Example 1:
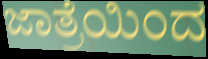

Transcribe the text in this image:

ಜಾತ್ರೆಯಿಂದ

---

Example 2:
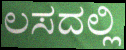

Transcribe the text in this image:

ಲಸದಲ್ಲಿ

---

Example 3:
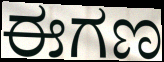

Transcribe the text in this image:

ಈಗಣ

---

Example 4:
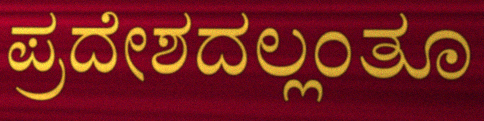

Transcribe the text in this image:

ಪ್ರದೇಶದಲ್ಲಂತೂ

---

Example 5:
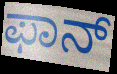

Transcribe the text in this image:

ಫಾನ್